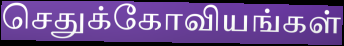
செதுக்கோவியங்கள்